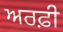
ਅਰਫ਼ੀ